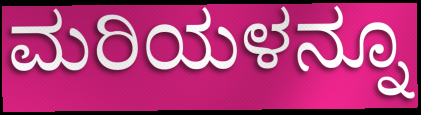
ಮರಿಯಳನ್ನೂ